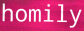
homily